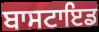
ਬਾਸਟਾਇਡ